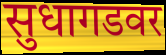
सुधागडवर